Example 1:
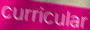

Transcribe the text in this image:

curricular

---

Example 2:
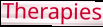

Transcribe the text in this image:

Therapies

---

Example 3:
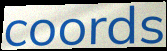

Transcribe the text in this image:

coords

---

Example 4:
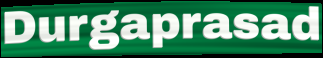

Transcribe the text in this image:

Durgaprasad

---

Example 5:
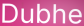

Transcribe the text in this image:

Dubhe